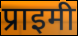
प्राइमी